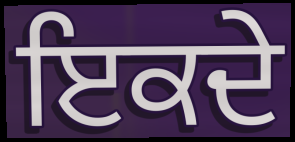
ਇਕਦੇ